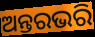
ଅନ୍ତରଭରି